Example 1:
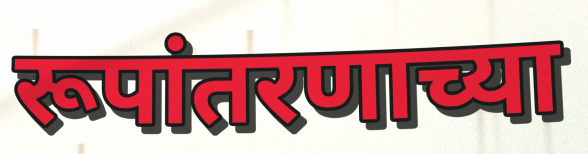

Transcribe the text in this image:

रूपांतरणाच्या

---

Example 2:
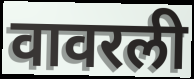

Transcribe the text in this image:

वावरली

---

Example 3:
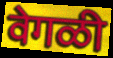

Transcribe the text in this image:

वेगळी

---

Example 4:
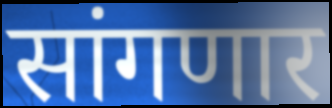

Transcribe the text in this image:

सांगणार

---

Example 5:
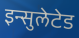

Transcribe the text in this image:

इन्सुलेटेड